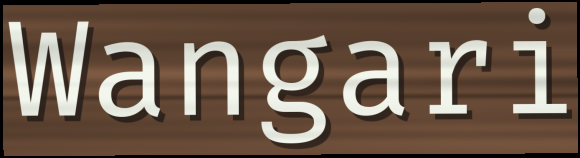
Wangari